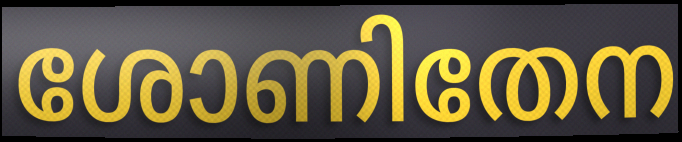
ശോണിതേന